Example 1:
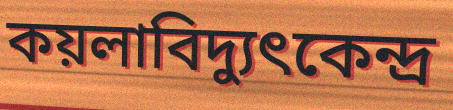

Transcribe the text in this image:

কয়লাবিদ্যুৎকেন্দ্র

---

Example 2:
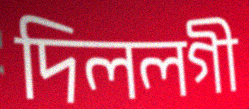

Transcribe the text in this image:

দিললগী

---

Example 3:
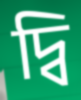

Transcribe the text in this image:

দ্বি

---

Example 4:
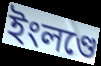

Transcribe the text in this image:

ইংলণ্ডে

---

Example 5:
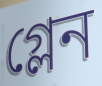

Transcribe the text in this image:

গ্লেন